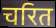
चरित